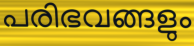
പരിഭവങ്ങളും